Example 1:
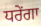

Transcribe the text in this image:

ਧਰੇਂਗਾ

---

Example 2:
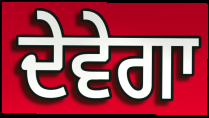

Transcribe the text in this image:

ਦੇਵੇਗਾ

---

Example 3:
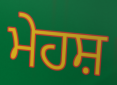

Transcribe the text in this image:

ਮੇਹਸ਼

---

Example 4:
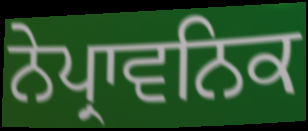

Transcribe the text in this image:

ਨੇਪ੍ਰਾਵਨਿਕ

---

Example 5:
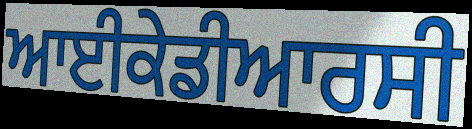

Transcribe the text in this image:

ਆਈਕੇਡੀਆਰਸੀ